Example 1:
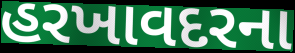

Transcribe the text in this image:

હરખાવદરના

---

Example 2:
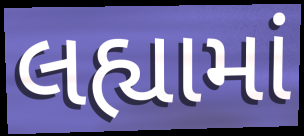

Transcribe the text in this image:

લહ્યામાં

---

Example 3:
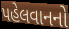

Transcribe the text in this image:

પહેલવાનનો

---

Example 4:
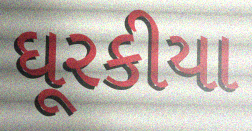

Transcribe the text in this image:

ઘૂરકીયા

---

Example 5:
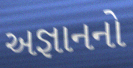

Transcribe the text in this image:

અજ્ઞાનનો